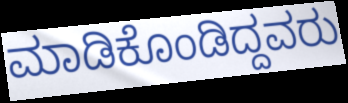
ಮಾಡಿಕೊಂಡಿದ್ದವರು